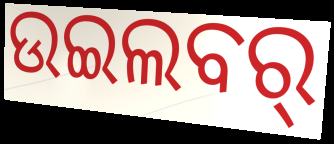
ଉଇଲବର୍